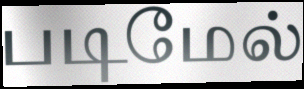
படிமேல்